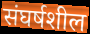
संघर्षशील